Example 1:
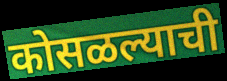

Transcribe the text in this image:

कोसळल्याची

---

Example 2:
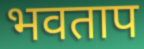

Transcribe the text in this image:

भवताप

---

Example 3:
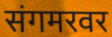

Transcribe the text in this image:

संगमरवर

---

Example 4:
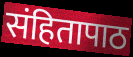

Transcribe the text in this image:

संहितापाठ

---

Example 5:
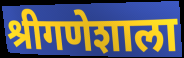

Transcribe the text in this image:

श्रीगणेशाला